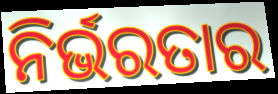
ନିର୍ଭରତାର